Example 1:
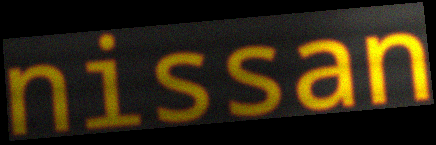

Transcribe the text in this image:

nissan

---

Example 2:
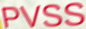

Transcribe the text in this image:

PVSS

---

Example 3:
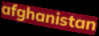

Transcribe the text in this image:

afghanistan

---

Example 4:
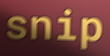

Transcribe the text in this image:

snip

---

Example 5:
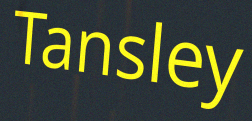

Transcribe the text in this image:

Tansley